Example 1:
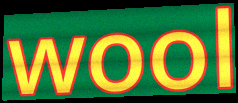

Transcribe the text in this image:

wool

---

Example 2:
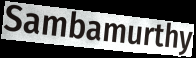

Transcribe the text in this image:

Sambamurthy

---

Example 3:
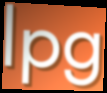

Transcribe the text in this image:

lpg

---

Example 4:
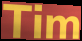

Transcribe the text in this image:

Tim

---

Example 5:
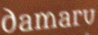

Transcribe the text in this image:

damaru